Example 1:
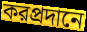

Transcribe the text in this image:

করপ্রদানে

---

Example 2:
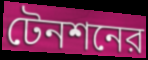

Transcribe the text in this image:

টেনশনের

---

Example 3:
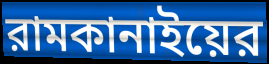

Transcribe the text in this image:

রামকানাইয়ের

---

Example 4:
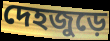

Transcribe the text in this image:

দেহজুড়ে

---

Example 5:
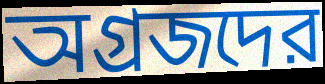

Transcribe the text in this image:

অগ্রজদের